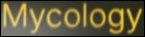
Mycology